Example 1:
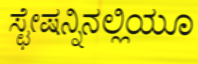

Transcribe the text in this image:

ಸ್ಟೇಷನ್ನಿನಲ್ಲಿಯೂ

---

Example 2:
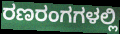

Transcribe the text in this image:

ರಣರಂಗಗಳಲ್ಲಿ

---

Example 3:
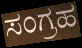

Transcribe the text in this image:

ಸಂಗ್ರಹ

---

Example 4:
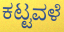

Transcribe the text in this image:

ಕಟ್ಟವಳೆ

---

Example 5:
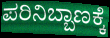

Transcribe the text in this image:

ಪರಿನಿಬ್ಬಾಣಕ್ಕೆ